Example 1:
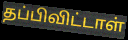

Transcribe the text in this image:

தப்பிவிட்டாள்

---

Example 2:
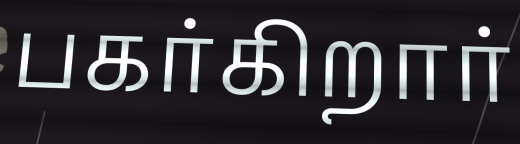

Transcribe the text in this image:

பகர்கிறார்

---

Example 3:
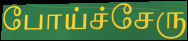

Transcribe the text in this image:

போய்ச்சேரு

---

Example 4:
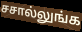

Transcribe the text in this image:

சசால்லுங்க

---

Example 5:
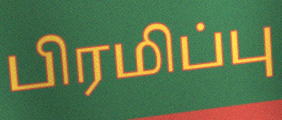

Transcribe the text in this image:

பிரமிப்பு